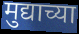
मुद्याच्या